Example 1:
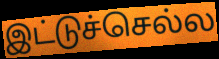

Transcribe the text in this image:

இட்டுச்செல்ல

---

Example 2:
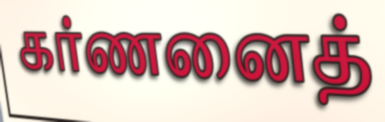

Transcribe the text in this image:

கர்ணனைத்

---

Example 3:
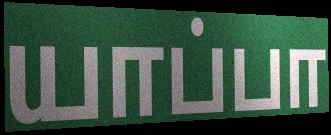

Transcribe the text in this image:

யாப்பா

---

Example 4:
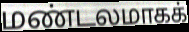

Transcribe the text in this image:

மண்டலமாகக்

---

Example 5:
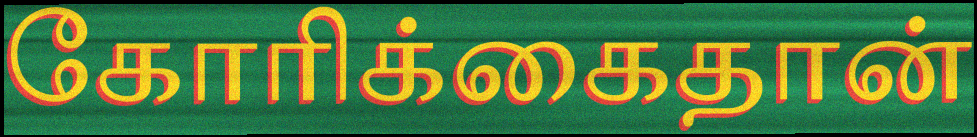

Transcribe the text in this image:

கோரிக்கைதான்